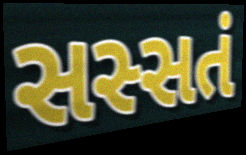
સસ્સતં